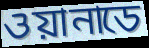
ওয়ানাডে